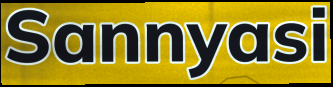
Sannyasi